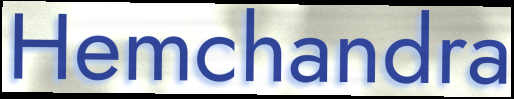
Hemchandra